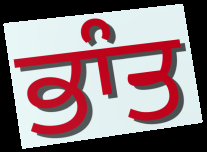
ਭਾੰਤ